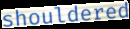
shouldered